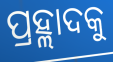
ପ୍ରହ୍ଲାଦକୁ